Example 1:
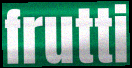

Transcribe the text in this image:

frutti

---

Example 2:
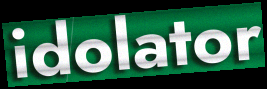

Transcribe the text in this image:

idolator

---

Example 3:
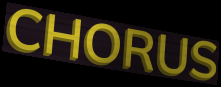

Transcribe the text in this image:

CHORUS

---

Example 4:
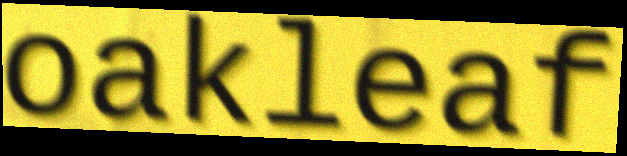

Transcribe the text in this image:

oakleaf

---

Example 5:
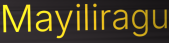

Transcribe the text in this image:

Mayiliragu